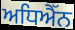
ਅਧਿਐੱਨ